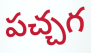
పచ్చగ